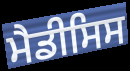
ਮੈਡੀਸਿਸ